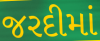
જરદીમાં